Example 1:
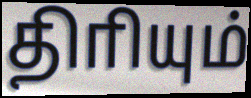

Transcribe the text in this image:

திரியும்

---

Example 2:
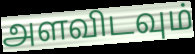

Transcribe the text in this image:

அளவிடவும்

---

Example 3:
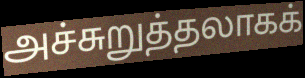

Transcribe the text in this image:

அச்சுறுத்தலாகக்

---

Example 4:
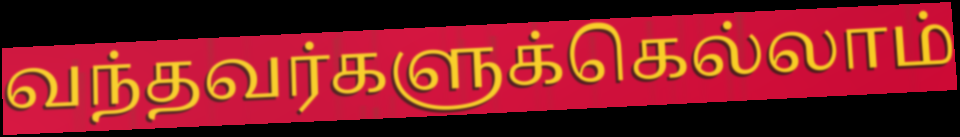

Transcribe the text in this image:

வந்தவர்களுக்கெல்லாம்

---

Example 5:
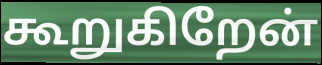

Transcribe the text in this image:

கூறுகிறேன்